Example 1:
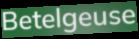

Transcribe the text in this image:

Betelgeuse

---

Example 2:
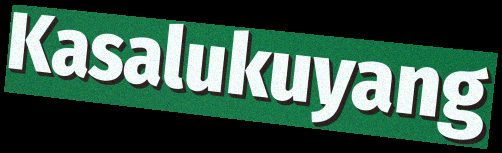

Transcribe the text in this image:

Kasalukuyang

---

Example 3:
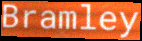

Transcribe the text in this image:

Bramley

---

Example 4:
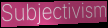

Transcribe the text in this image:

Subjectivism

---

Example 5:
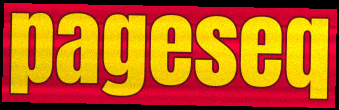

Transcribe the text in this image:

pageseq